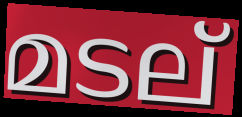
മടല്